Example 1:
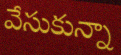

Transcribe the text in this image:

వేసుకున్నా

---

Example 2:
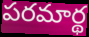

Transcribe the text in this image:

పరమార్థ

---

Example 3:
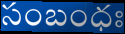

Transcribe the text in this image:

సంబంధః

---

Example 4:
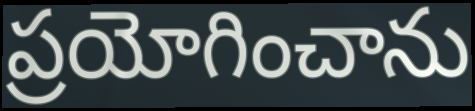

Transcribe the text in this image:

ప్రయోగించాను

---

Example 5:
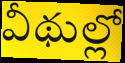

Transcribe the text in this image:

వీథుల్లో